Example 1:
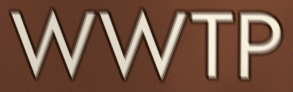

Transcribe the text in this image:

WWTP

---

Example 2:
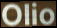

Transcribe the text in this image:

Olio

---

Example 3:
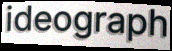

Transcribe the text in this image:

ideograph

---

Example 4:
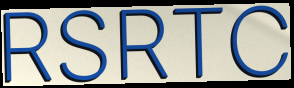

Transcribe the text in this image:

RSRTC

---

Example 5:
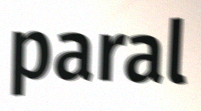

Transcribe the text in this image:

paral